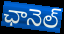
ఛానెల్